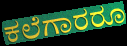
ಕಲೆಗಾರರೂ